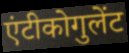
एंटीकोगुलेंट